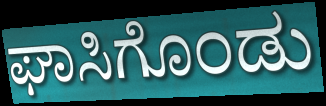
ಘಾಸಿಗೊಂಡು